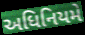
અધિનિયમે